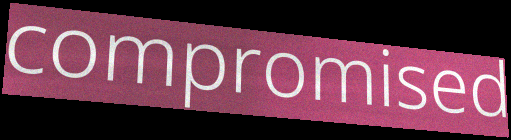
compromised